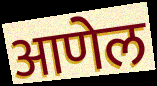
आणेल